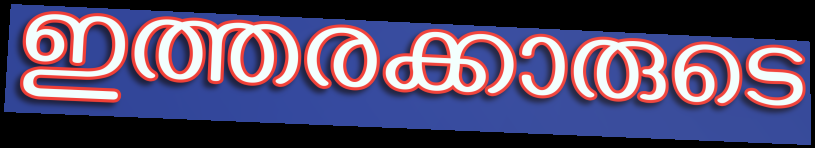
ഇത്തരക്കാരുടെ